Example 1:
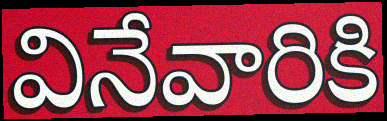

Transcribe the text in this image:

వినేవారికి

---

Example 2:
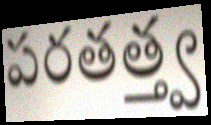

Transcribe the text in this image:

పరతత్త్వ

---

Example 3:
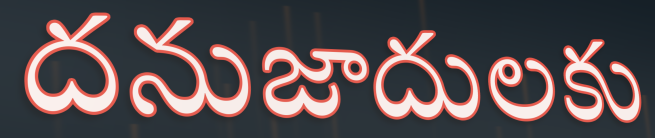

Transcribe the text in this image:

దనుజాదులకు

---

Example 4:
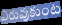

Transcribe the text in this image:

ఎరువుకుంట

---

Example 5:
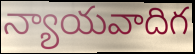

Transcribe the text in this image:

న్యాయవాదిగ